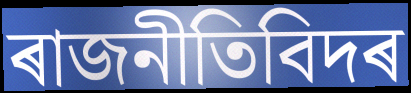
ৰাজনীতিবিদৰ